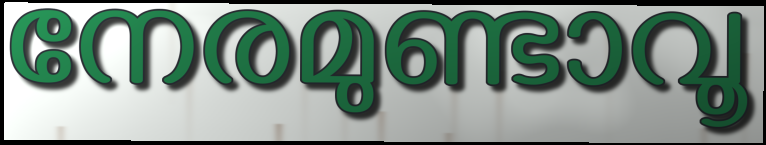
നേരമുണ്ടാവൂ